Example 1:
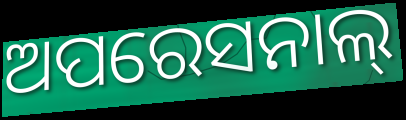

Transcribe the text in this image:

ଅପରେସନାଲ୍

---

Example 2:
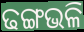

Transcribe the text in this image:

ଢଙ୍ଗଭଳି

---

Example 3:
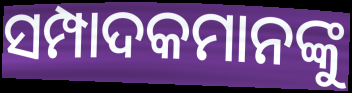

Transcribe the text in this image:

ସମ୍ପାଦକମାନଙ୍କୁ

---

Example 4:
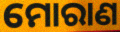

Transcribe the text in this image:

ମୋରାଣ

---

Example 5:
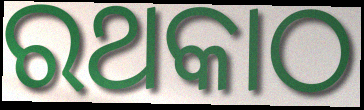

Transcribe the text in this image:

ରଥକାଠ